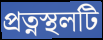
প্রত্নস্থলটি